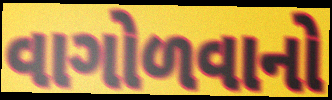
વાગોળવાનો